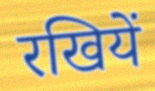
रखियें